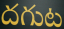
దగుట